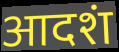
आदशं